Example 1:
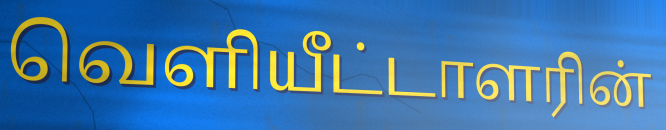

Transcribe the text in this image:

வெளியீட்டாளரின்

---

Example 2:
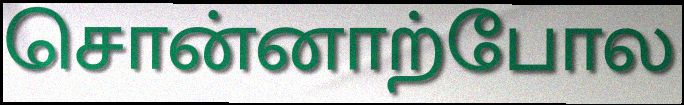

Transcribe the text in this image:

சொன்னாற்போல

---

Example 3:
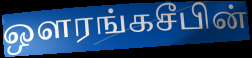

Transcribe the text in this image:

ஔரங்கசீபின்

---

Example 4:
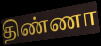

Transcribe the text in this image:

திண்ணா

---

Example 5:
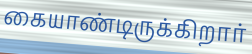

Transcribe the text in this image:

கையாண்டிருக்கிறார்